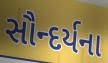
સૌન્દર્યના